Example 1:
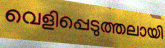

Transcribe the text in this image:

വെളിപ്പെടുത്തലായി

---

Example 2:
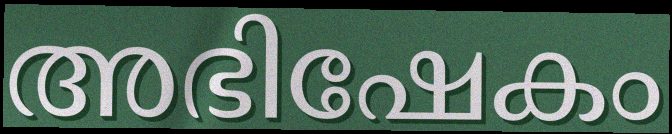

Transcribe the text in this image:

അഭിഷേകം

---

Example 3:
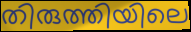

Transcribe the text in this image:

തിരുത്തിയിലെ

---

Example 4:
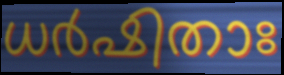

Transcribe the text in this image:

ധർഷിതാഃ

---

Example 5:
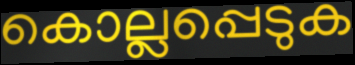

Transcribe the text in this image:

കൊല്ലപ്പെടുക